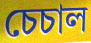
চেচাল